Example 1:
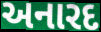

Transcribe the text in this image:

અનારદ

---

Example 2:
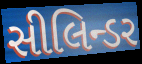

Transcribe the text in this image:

સીલિન્ડર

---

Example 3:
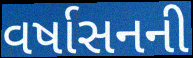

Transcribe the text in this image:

વર્ષાસનની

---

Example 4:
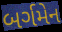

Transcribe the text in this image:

બર્ગમેન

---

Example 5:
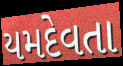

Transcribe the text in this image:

યમદેવતા